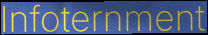
Infoternment